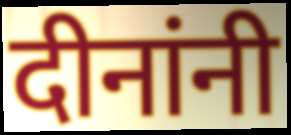
दीनांनी